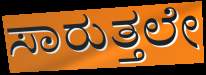
ಸಾರುತ್ತಲೇ